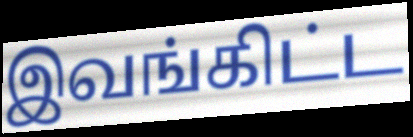
இவங்கிட்ட